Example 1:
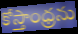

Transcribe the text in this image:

కోస్తాంధ్రను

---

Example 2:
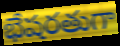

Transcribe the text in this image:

భేషరతుగా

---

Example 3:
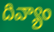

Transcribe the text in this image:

దివ్యాం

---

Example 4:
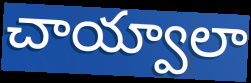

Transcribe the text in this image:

చాయ్వాలా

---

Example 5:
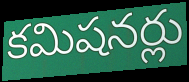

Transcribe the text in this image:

కమిషనర్లు